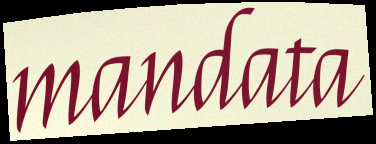
mandata